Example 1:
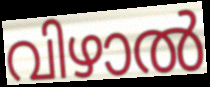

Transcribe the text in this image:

വിഴാൽ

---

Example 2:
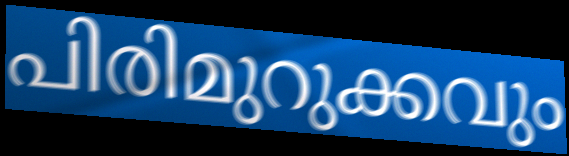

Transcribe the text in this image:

പിരിമുറുക്കവും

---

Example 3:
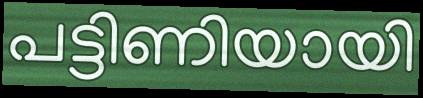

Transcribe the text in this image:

പട്ടിണിയായി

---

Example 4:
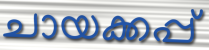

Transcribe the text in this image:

ചായക്കപ്പ്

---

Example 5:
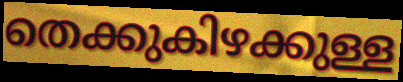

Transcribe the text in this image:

തെക്കുകിഴക്കുള്ള